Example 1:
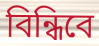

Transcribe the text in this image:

বিন্ধিবে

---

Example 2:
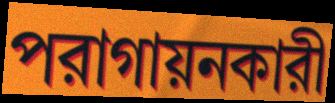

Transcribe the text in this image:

পরাগায়নকারী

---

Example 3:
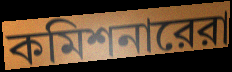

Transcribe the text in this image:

কমিশনারেরা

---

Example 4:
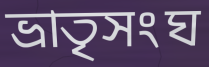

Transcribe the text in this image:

ভ্রাতৃসংঘ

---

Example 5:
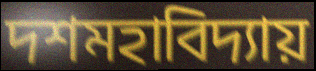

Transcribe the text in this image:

দশমহাবিদ্যায়